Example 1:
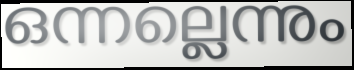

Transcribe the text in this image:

ഒന്നല്ലെന്നും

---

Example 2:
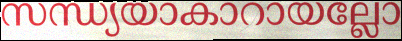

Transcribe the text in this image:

സന്ധ്യയാകാറായല്ലോ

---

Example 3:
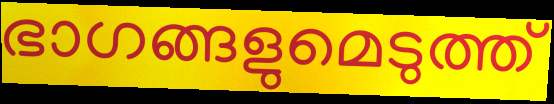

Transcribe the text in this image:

ഭാഗങ്ങളുമെടുത്ത്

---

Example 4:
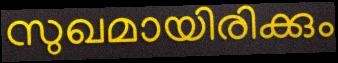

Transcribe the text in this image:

സുഖമായിരിക്കും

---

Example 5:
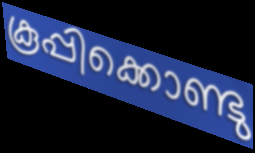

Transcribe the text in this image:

കൂപ്പിക്കൊണ്ടു